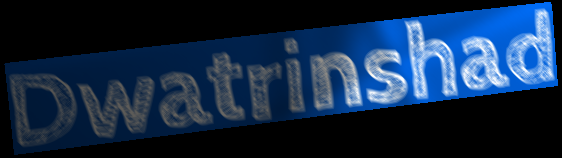
Dwatrinshad